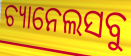
ଚ୍ୟାନେଲସବୁ